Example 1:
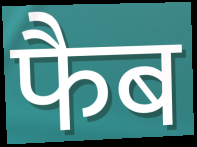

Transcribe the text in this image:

फैब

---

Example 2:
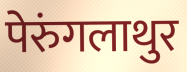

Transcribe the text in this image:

पेरुंगलाथुर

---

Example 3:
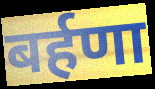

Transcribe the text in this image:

बर्हणा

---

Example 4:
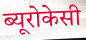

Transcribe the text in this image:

ब्यूरोकेसी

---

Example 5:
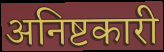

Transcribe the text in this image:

अनिष्टकारी